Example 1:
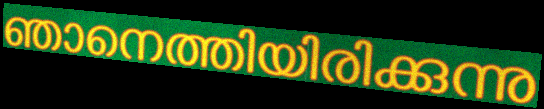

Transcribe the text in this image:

ഞാനെത്തിയിരിക്കുന്നു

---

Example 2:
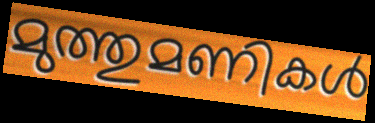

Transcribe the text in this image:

മുത്തുമണികൾ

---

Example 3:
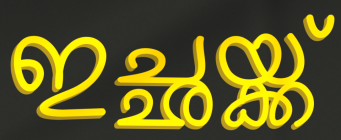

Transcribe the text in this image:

ഇച്ഛയ്ക്ക്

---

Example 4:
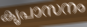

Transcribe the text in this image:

കൃപാസനം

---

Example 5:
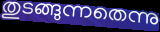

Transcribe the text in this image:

തുടങ്ങുന്നതെന്നു